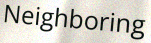
Neighboring